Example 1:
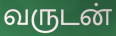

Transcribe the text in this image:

வருடன்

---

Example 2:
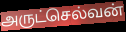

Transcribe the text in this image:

அருட்செல்வன்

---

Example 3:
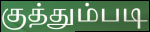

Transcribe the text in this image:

குத்தும்படி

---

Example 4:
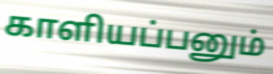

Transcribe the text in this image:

காளியப்பனும்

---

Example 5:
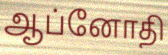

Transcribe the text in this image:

ஆப்னோதி